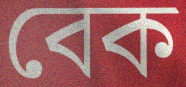
বেক